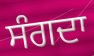
ਸੰਗਦਾ